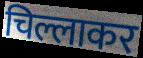
चिल्लाकर